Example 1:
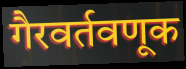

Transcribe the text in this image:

गैरवर्तवणूक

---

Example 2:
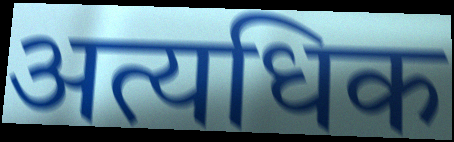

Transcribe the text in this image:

अत्यधिक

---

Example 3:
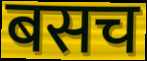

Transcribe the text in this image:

बसच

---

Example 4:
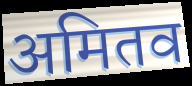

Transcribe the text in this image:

अमितव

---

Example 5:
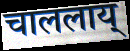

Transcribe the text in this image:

चाललाय्